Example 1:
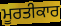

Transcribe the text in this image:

ਮੂਰਤੀਕਾਰ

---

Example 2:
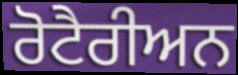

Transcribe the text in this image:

ਰੋਟੈਰੀਅਨ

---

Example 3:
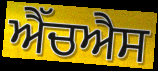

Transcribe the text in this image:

ਐੱਚਐਸ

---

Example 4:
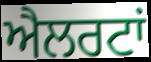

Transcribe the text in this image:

ਐਲਰਟਾਂ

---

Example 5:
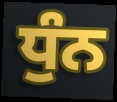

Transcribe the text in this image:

ਧੁੰਨ